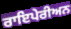
ਰਾਇਪੇਰੀਅਨ